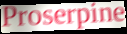
Proserpine